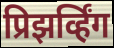
प्रिझर्व्हिंग